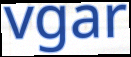
vgar